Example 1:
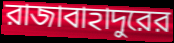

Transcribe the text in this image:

রাজাবাহাদুরের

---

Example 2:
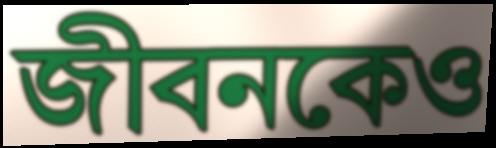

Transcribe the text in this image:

জীবনকেও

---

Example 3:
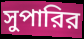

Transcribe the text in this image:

সুপারির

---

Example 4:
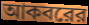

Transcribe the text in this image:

আকবরের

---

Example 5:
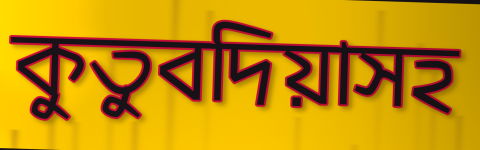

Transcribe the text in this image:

কুতুবদিয়াসহ